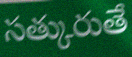
సత్కురుతే